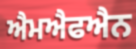
ਐਮਐਫਐਨ